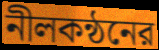
নীলকন্ঠনের